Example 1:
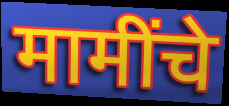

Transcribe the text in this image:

मामींचे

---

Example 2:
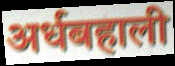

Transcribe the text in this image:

अर्धबहाली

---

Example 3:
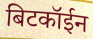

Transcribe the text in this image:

बिटकॉईन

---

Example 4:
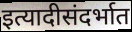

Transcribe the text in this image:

इत्यादीसंदर्भात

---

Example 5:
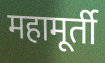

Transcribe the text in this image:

महामूर्ती